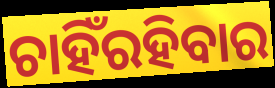
ଚାହିଁରହିବାର